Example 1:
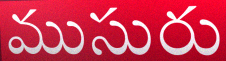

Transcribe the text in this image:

ముసురు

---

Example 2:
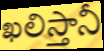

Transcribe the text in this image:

ఖలిస్తానీ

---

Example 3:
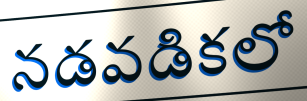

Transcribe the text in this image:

నడవడికలో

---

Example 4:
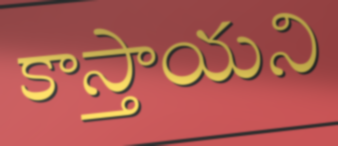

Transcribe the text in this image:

కాస్తాయని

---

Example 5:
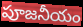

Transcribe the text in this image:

పూజనీయం